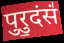
पुरु॒दंसं॑